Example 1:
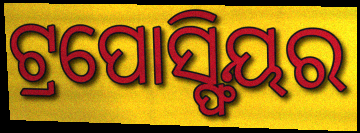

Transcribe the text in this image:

ଟ୍ରପୋସ୍ଫିୟର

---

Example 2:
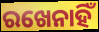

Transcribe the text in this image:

ରଖେନାହିଁ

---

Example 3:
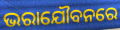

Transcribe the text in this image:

ଭରାଯୌବନରେ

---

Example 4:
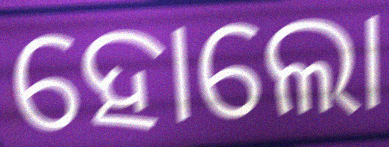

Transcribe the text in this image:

ହୋଲୋ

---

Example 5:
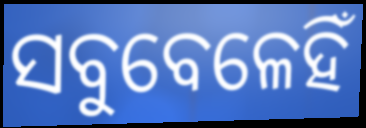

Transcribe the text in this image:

ସବୁବେଳେହିଁ